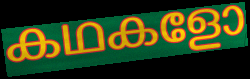
കഥകളോ